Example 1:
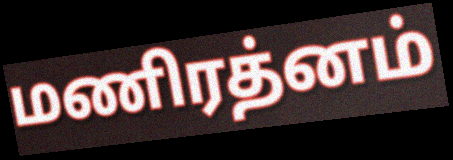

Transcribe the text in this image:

மணிரத்னம்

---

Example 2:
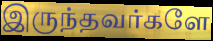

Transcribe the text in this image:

இருந்தவர்களே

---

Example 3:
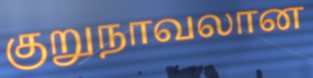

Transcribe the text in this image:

குறுநாவலான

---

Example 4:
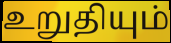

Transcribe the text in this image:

உறுதியும்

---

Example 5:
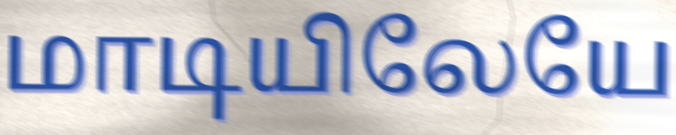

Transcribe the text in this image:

மாடியிலேயே